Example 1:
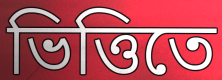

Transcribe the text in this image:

ভিত্তিতে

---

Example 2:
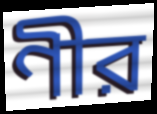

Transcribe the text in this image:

ণীর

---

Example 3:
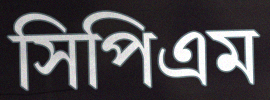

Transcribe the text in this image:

সিপিএম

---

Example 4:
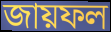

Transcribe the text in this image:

জায়ফল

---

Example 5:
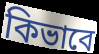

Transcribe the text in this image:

কিভাবে